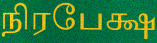
நிரபேக்ஷ